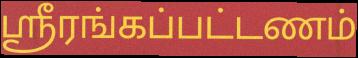
ஸ்ரீரங்கப்பட்டணம்